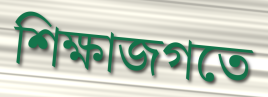
শিক্ষাজগতে